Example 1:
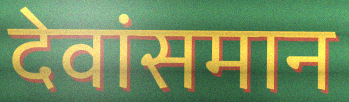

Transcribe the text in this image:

देवांसमान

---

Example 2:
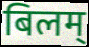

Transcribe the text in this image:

बिलम्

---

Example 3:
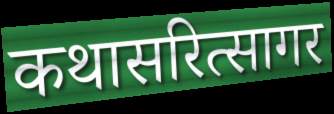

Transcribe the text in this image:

कथासरित्सागर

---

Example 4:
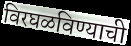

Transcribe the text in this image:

विरघळविण्याची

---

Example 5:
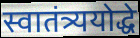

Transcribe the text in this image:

स्वातंत्र्ययोद्धे